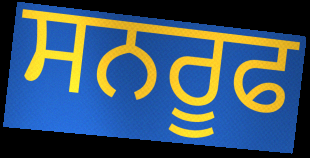
ਸਨਰੂਫ